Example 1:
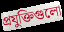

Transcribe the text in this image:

প্রযুক্তিগুলো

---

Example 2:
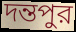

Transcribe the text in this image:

দন্তপুর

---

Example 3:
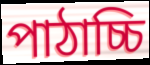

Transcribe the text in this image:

পাঠাচ্চি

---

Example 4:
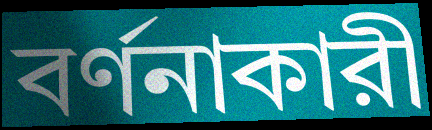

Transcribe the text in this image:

বর্ণনাকারী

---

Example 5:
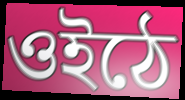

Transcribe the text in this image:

ওইঠে